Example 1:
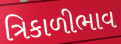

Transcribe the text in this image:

ત્રિકાળીભાવ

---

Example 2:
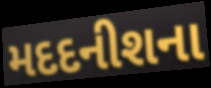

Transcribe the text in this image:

મદદનીશના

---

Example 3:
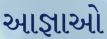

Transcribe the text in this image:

આજ્ઞાઓ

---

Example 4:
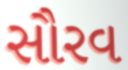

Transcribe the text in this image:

સૌરવ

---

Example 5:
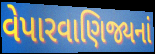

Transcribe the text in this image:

વેપારવાણિજ્યનાં